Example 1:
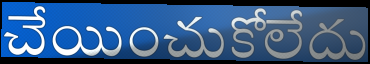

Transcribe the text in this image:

చేయించుకోలేదు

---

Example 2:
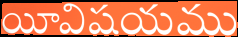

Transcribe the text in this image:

యీవిషయము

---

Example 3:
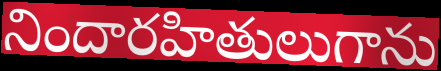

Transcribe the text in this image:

నిందారహితులుగాను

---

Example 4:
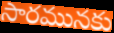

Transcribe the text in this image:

సారమునకు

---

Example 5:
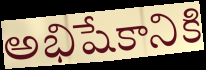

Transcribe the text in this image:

అభిషేకానికి